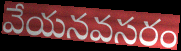
వేయనవసరం